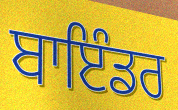
ਬਾਇੰਡਰ